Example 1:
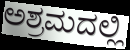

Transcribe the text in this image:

ಅಶ್ರಮದಲ್ಲಿ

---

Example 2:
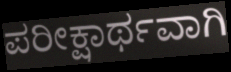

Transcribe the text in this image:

ಪರೀಕ್ಷಾರ್ಥವಾಗಿ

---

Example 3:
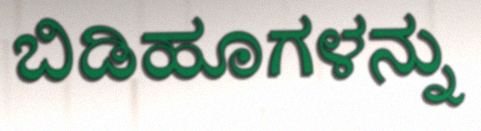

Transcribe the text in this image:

ಬಿಡಿಹೂಗಳನ್ನು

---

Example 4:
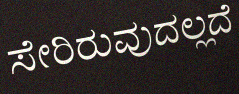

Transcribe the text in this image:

ಸೇರಿರುವುದಲ್ಲದೆ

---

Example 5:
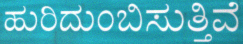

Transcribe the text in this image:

ಹುರಿದುಂಬಿಸುತ್ತಿವೆ